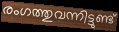
രംഗത്തുവന്നിട്ടുണ്ട്